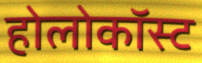
होलोकॉस्ट